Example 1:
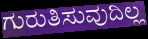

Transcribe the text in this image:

ಗುರುತಿಸುವುದಿಲ್ಲ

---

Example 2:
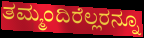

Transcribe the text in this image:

ತಮ್ಮಂದಿರೆಲ್ಲರನ್ನೂ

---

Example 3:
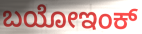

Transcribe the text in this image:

ಬಯೋಇಂಕ್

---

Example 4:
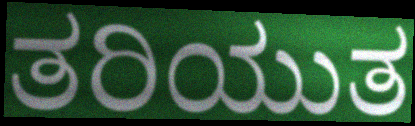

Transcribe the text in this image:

ತರಿಯುತ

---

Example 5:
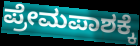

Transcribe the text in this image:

ಪ್ರೇಮಪಾಶಕ್ಕೆ